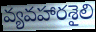
వ్యవహారశైలి